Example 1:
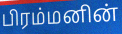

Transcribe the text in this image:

பிரம்மனின்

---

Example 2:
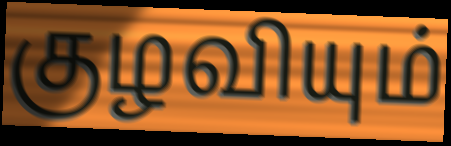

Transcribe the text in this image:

குழவியும்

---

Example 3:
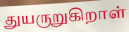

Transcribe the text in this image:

துயருறுகிறாள்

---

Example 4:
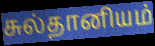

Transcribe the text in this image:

சுல்தானியம்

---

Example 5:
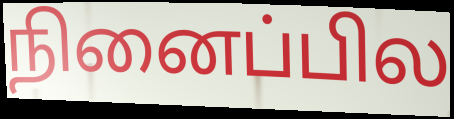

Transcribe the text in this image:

நினைப்பில